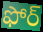
ఫోర్